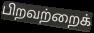
பிறவற்றைக்